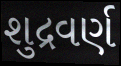
શુદ્રવર્ણ